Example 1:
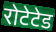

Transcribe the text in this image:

रोटेटेड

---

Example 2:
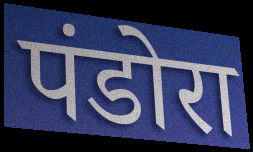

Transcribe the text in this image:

पंडोरा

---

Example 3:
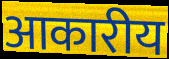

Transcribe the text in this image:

आकारीय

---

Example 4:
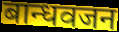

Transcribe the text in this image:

बान्धवजन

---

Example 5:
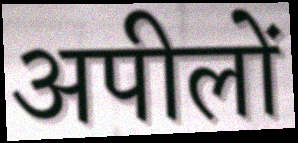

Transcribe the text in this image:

अपीलों